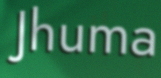
Jhuma